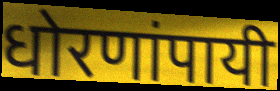
धोरणांपायी